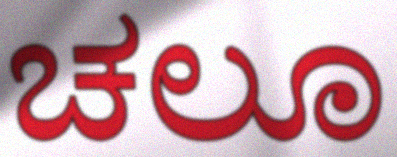
ಚಲೂ